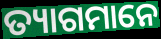
ତ୍ୟାଗମାନେ